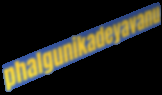
phalgunikadeyavanu